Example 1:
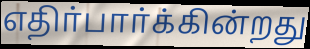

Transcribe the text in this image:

எதிர்பார்க்கின்றது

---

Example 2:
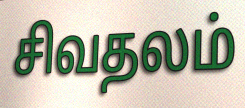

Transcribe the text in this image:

சிவதலம்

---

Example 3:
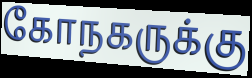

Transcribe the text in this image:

கோநகருக்கு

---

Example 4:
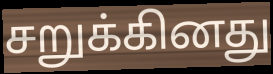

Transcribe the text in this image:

சறுக்கினது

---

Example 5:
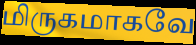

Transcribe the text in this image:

மிருகமாகவே